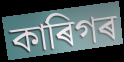
কাৰিগৰ